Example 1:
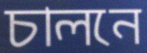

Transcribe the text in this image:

চালনে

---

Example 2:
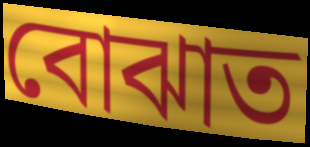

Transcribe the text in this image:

বোঝাত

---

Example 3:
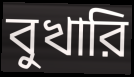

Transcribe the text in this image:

বুখারি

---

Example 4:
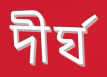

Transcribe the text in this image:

দীর্ঘ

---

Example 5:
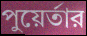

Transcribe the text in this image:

পুয়ের্তার